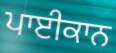
ਪਾਈਕਾਨ